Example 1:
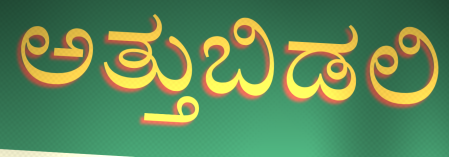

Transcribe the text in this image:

ಅತ್ತುಬಿಡಲಿ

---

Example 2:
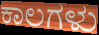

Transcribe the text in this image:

ಕಾಲಗಳು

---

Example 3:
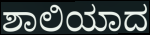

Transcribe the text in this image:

ಶಾಲಿಯಾದ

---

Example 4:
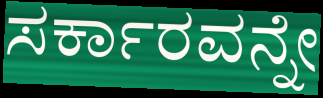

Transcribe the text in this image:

ಸರ್ಕಾರವನ್ನೇ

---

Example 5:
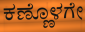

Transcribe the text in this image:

ಕಣ್ಣೊಳಗೇ